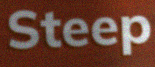
Steep